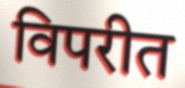
विपरीत